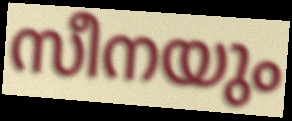
സീനയും